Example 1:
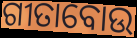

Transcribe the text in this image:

ଗୀତାବୋଉ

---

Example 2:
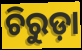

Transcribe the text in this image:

ଚିରୁଡ଼ା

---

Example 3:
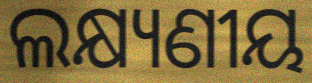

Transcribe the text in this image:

ଲକ୍ଷ୍ୟଣୀୟ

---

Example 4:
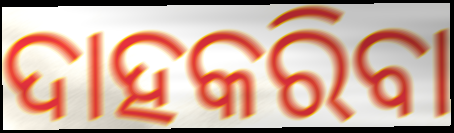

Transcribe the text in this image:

ଦାହକରିବା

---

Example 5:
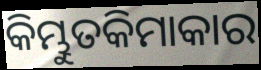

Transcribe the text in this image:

କିମ୍ଭୁତକିମାକାର